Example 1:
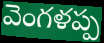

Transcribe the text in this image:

వెంగళప్ప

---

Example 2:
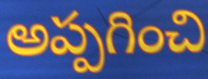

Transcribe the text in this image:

అప్పగించి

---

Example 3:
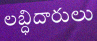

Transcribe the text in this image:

లబ్ధిదారులు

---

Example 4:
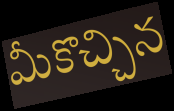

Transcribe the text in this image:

మీకొచ్చిన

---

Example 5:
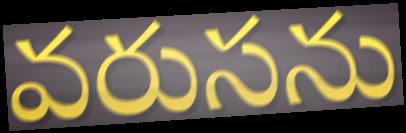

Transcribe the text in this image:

వరుసను